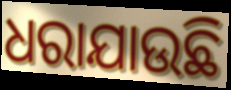
ଧରାଯାଉଛି